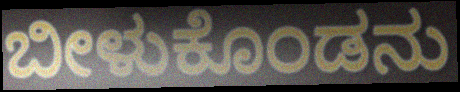
ಬೀಳುಕೊಂಡನು